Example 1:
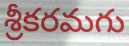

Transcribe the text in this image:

శ్రీకరమగు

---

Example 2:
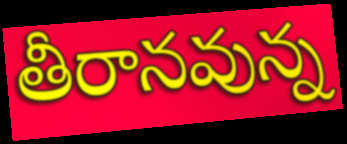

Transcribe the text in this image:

తీరానవున్న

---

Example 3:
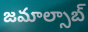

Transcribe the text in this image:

జమాల్సాబ్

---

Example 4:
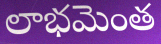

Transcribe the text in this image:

లాభమెంత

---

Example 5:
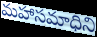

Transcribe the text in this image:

మహాసమాధిని